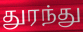
துரந்து